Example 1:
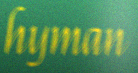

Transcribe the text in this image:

hyman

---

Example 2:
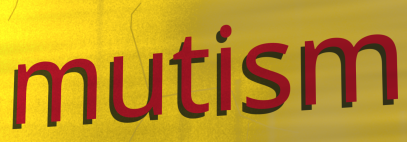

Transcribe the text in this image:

mutism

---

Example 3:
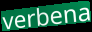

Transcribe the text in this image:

verbena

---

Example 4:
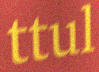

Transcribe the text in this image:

ttul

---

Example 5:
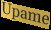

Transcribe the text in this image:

Upame